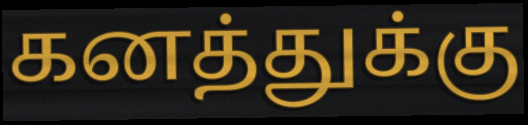
கனத்துக்கு